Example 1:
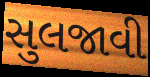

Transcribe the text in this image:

સુલજાવી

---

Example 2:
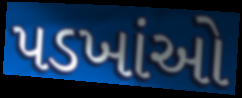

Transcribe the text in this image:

પડખાંઓ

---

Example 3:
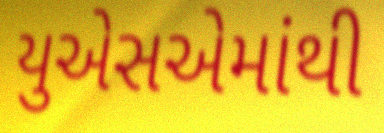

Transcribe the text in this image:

યુએસએમાંથી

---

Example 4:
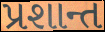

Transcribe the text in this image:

પ્રશાન્ત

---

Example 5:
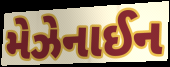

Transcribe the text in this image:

મેઝેનાઈન